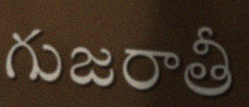
గుజరాతీ